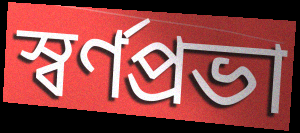
স্বর্ণপ্রভা